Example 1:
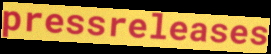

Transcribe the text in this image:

pressreleases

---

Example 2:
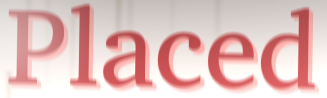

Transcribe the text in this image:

Placed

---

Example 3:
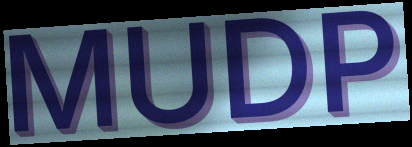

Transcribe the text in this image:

MUDP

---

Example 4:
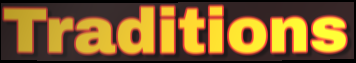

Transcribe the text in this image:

Traditions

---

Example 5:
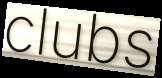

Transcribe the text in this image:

clubs